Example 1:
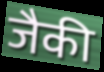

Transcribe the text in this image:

जैकी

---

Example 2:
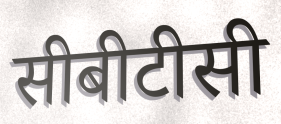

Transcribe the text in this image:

सीबीटीसी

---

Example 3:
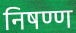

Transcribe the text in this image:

निषण्ण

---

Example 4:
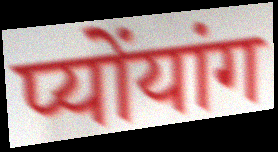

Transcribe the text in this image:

प्योंयांग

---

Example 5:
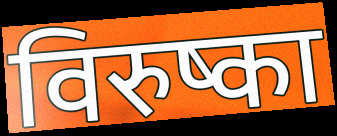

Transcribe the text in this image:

विरुष्का